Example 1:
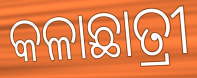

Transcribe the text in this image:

କଳାଛାତ୍ରୀ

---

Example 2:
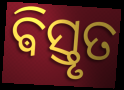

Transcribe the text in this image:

ଵିସ୍ତୃତ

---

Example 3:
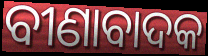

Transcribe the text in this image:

ବୀଣାବାଦକ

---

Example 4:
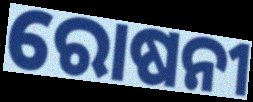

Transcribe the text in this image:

ରୋଷନୀ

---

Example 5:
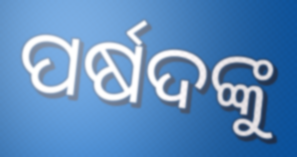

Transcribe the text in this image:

ପର୍ଷଦଙ୍କୁ